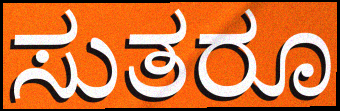
ಸುತರೂ